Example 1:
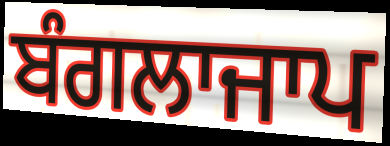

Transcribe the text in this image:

ਬੰਗਲਾਜਾਪ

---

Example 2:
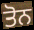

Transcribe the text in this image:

ਤੋਨ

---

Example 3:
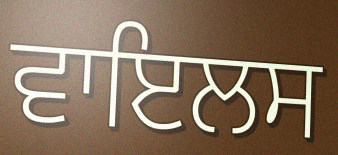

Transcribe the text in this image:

ਵਾਇਲਸ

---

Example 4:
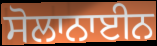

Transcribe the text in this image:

ਸੋਲਾਨਾਈਨ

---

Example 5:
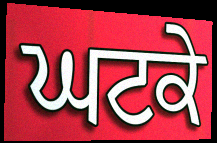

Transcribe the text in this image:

ਘਟਕੇ